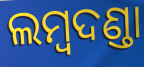
ଲମ୍ୱଦଣ୍ଡା